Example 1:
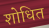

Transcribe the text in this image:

शोधित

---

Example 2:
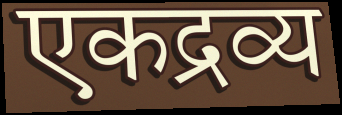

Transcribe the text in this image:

एकद्रव्य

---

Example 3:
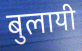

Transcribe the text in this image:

बुलायी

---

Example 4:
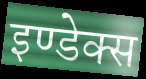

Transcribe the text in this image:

इण्डेक्स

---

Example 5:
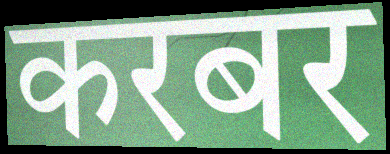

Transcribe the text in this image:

करबर